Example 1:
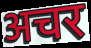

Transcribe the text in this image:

अचर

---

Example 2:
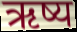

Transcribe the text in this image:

ऋष्य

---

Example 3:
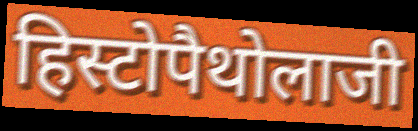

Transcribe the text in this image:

हिस्टोपैथोलाजी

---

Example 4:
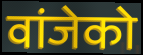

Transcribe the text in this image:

वांजेको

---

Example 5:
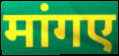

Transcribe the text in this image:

मांगए